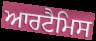
ਆਰਟੈਮਿਸ